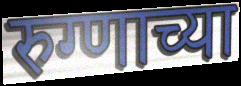
रुग्णाच्या